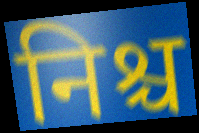
निश्च